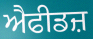
ਐਫੀਡਜ਼